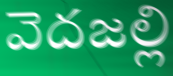
వెదజల్లి